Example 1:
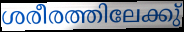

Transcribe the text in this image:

ശരീരത്തിലേക്കു്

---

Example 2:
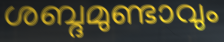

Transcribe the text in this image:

ശബ്ദമുണ്ടാവും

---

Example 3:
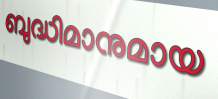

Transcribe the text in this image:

ബുദ്ധിമാനുമായ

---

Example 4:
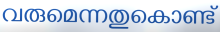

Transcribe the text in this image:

വരുമെന്നതുകൊണ്ട്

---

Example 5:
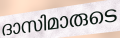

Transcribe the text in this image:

ദാസിമാരുടെ